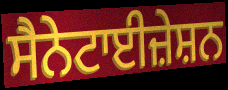
ਸੈਨੇਟਾਈਜ਼ੇਸ਼ਨ